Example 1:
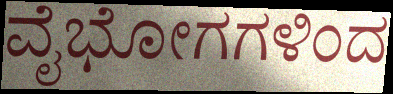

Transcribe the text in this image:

ವೈಭೋಗಗಳಿಂದ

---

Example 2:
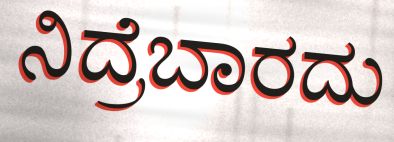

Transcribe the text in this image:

ನಿದ್ರೆಬಾರದು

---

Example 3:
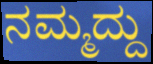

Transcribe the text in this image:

ನಮ್ಮದ್ದು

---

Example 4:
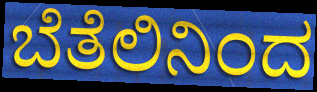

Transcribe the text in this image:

ಬೆತೆಲಿನಿಂದ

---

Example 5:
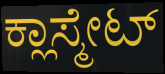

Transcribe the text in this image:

ಕ್ಲಾಸ್ಮೇಟ್